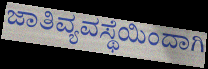
ಜಾತಿವ್ಯವಸ್ಥೆಯಿಂದಾಗಿ